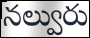
నల్వురు